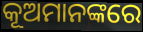
କୂଅମାନଙ୍କରେ